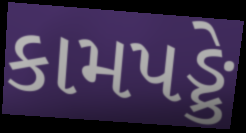
કામપઙ્કે